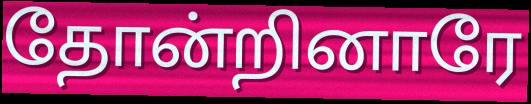
தோன்றினாரே